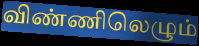
விண்ணிலெழும்